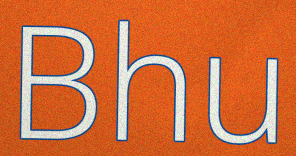
Bhu